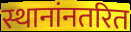
स्थानांनतरित